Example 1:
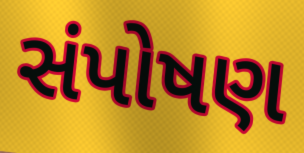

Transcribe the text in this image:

સંપોષણ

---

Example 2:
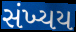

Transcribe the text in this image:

સંખ્યય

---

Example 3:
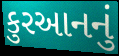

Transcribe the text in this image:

કુરઆનનું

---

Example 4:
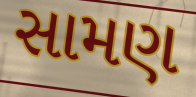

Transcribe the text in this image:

સામણ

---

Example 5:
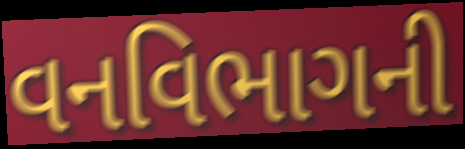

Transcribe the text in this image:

વનવિભાગની